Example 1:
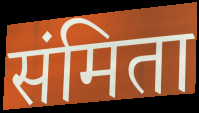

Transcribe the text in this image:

संमिता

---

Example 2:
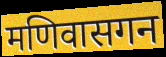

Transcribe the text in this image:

मणिवासगन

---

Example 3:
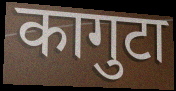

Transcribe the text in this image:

कागुटा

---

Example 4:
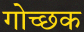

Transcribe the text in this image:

गोच्छक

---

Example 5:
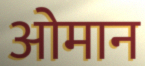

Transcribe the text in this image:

ओमान